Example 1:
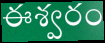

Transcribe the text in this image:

ఈశ్వరం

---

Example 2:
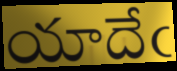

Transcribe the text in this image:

యాదేఁ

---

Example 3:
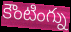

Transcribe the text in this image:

కౌంటింగ్ను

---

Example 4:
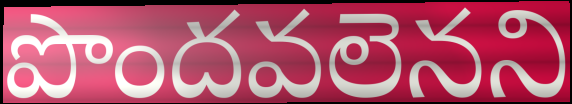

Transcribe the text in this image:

పొందవలెనని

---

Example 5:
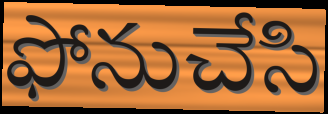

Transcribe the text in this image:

ఫోనుచేసి